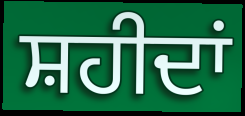
ਸ਼ਹੀਦਾਂ